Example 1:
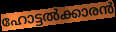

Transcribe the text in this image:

ഹോട്ടൽക്കാരൻ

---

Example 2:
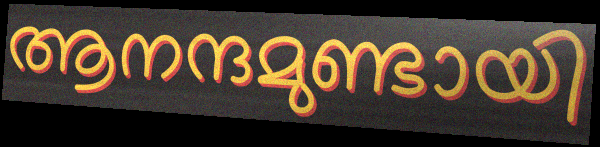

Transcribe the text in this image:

ആനന്ദമുണ്ടായി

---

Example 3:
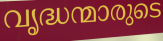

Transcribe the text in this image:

വൃദ്ധന്മാരുടെ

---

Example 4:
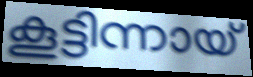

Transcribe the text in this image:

കൂട്ടിന്നായ്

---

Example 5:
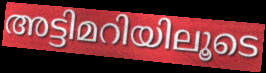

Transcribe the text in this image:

അട്ടിമറിയിലൂടെ